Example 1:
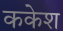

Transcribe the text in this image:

ककेश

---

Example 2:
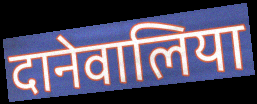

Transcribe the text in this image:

दानेवालिया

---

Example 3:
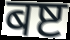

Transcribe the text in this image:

बष्ट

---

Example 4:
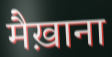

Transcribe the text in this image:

मैख़ाना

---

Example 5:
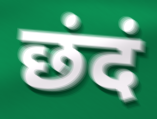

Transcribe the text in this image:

छंदं